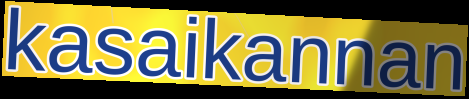
kasaikannan